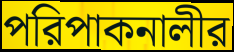
পরিপাকনালীর